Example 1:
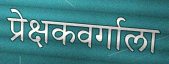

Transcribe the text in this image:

प्रेक्षकवर्गाला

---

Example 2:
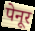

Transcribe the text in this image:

पेनूर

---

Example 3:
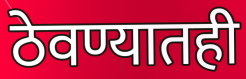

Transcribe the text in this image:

ठेवण्यातही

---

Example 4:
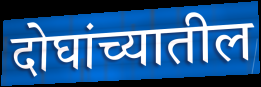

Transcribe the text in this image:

दोघांच्यातील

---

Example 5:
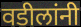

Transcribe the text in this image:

वडीलांनी